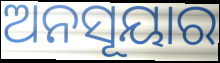
ଅନସୂୟାର